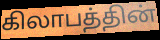
கிலாபத்தின்